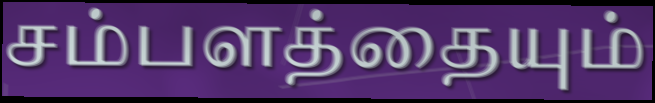
சம்பளத்தையும்